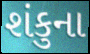
શંકુના